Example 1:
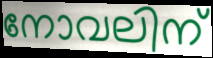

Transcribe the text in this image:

നോവലിന്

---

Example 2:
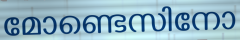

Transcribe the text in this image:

മോണ്ടെസിനോ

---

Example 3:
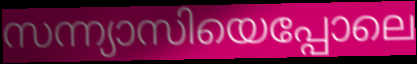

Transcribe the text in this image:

സന്ന്യാസിയെപ്പോലെ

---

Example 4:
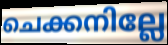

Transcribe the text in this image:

ചെക്കനില്ലേ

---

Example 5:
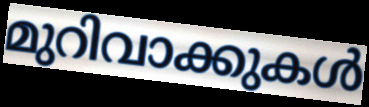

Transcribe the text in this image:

മുറിവാക്കുകൾ